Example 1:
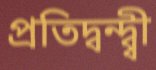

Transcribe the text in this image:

প্ৰতিদ্বন্দ্ব্বী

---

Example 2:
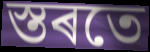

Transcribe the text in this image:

স্তৰতে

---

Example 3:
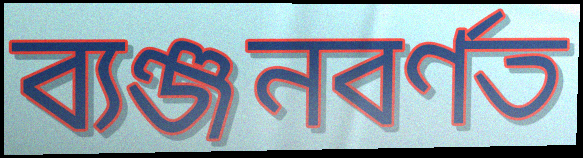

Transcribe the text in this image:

ব্যঞ্জনবৰ্ণত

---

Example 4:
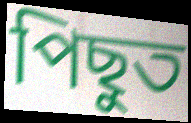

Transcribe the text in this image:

পিছুত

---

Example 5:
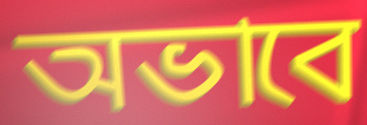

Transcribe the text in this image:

অভাবে